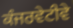
ਕੰਜਰਵੇਟੀਵੇ